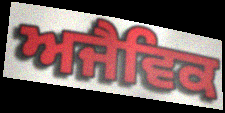
ਅਜੈਵਿਕ